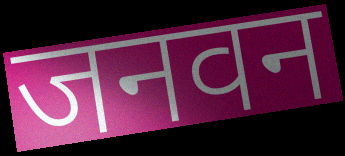
जनवन